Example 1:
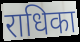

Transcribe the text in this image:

राधिका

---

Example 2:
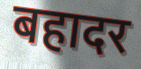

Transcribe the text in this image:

बहादर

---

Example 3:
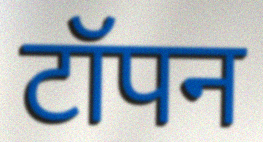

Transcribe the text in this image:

टॉपन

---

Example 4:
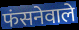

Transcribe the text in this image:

फंसनेवाले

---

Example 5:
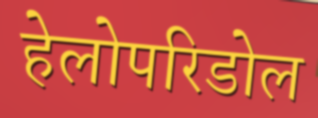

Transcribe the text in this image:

हेलोपरिडोल